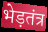
भेड़तंत्र